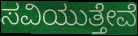
ಸವಿಯುತ್ತೇವೆ